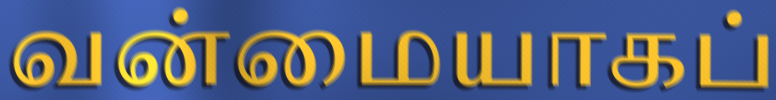
வன்மையாகப்